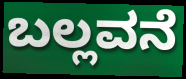
ಬಲ್ಲವನೆ